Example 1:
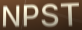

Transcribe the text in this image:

NPST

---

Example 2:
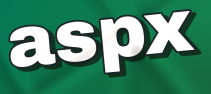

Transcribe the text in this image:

aspx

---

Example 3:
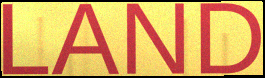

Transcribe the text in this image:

LAND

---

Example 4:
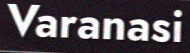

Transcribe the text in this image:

Varanasi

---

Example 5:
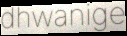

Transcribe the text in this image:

dhwanige